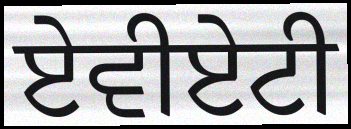
ਏਵੀਏਟੀ